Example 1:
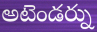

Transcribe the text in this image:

అటెండర్ను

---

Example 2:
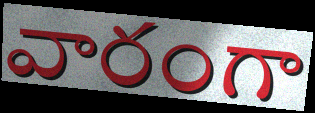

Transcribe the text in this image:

వారంగా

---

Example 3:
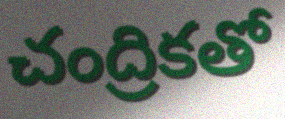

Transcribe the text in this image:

చంద్రికతో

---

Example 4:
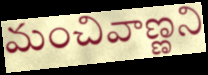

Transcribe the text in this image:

మంచివాణ్ణని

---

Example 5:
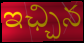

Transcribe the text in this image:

ఇఛ్చిన